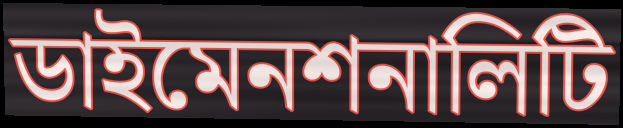
ডাইমেনশনালিটি